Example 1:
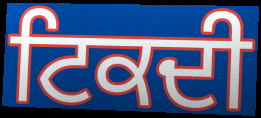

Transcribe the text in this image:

ਟਿਕਦੀ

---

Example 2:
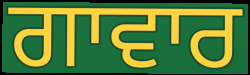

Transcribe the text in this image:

ਗਾਵਾਰ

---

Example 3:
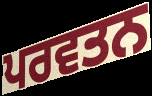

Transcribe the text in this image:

ਪਰਵਤਨ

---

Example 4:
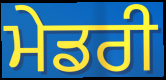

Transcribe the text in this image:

ਮੇਡਰੀ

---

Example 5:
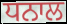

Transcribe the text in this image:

ਧਨਾਲ